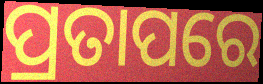
ପ୍ରତାପରେ